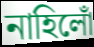
নাহিলোঁ